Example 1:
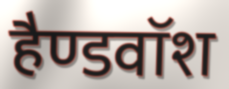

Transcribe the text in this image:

हैण्डवॉश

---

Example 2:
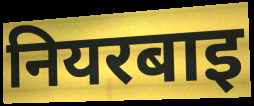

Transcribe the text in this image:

नियरबाइ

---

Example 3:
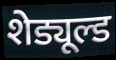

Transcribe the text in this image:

शेड्यूल्ड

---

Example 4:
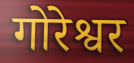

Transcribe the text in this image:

गोरेश्वर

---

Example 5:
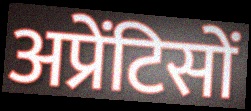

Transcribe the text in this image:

अप्रेंटिसों